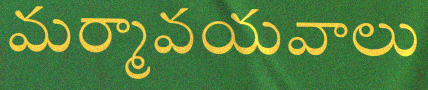
మర్మావయవాలు